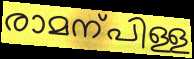
രാമന്പിള്ള